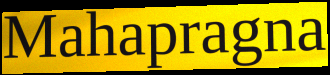
Mahapragna